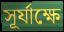
সূর্যাক্ষে